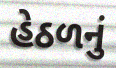
હેઠળનું